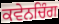
ਕਵੇਨਚਿੰਗ